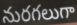
నురగలుగా